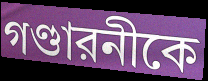
গণ্ডারনীকে